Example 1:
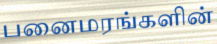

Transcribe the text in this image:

பனைமரங்களின்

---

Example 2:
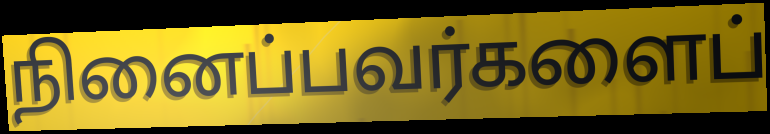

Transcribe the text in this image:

நினைப்பவர்களைப்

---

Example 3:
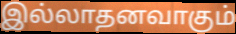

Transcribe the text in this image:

இல்லாதனவாகும்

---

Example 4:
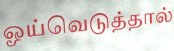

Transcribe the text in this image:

ஓய்வெடுத்தால்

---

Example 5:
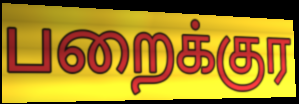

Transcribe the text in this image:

பறைக்குர